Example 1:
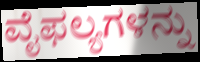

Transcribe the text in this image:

ವೈಫಲ್ಯಗಳನ್ನು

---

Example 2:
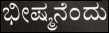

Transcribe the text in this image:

ಭೀಷ್ಮನೆಂದು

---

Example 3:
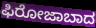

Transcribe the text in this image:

ಫಿರೋಜಾಬಾದ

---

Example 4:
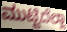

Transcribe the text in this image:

ಮುಟ್ಟಿದೆಲ್ಲಾ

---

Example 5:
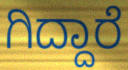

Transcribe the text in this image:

ಗಿದ್ದಾರೆ